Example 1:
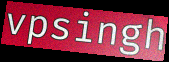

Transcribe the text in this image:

vpsingh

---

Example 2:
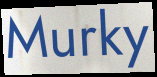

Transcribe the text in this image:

Murky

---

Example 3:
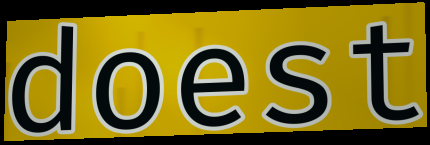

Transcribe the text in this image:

doest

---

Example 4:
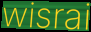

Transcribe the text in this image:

wisrai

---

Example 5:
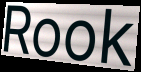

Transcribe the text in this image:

Rook